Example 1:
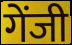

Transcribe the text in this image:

गेंजी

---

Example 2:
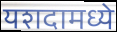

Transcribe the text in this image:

यशदामध्ये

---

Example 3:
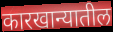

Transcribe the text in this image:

कारखान्यातील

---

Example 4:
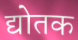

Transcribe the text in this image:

द्योतक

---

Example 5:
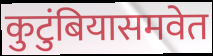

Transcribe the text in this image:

कुटुंबियासमवेत